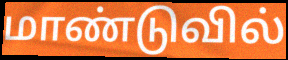
மாண்டுவில்